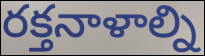
రక్తనాళాల్ని